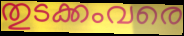
തുടക്കംവരെ